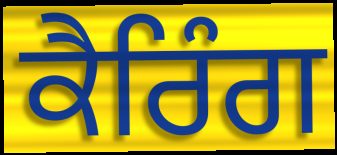
ਕੈਰਿੰਗ